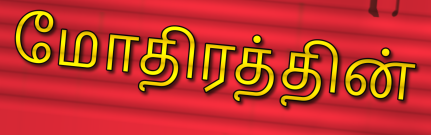
மோதிரத்தின்